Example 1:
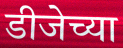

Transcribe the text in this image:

डीजेच्या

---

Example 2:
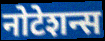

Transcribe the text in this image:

नोटेशन्स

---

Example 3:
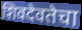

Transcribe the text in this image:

शिवदेवतेचा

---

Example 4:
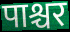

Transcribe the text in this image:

पाश्चर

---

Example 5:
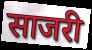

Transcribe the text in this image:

साजरी